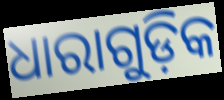
ଧାରାଗୁଡ଼ିକ